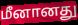
மீனானது